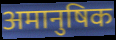
अमानुषिक